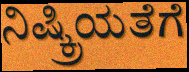
ನಿಷ್ಕ್ರಿಯತೆಗೆ